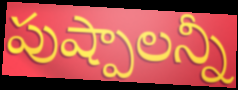
పుష్పాలన్నీ